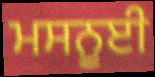
ਮਸਨੂਈ